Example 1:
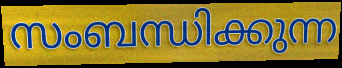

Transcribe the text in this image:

സംബന്ധിക്കുന്ന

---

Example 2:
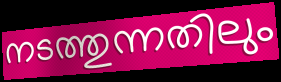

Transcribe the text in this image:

നടത്തുന്നതിലും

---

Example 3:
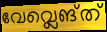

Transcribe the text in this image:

വേവ്ലെങ്ത്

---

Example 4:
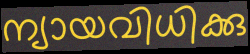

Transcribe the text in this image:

ന്യായവിധിക്കു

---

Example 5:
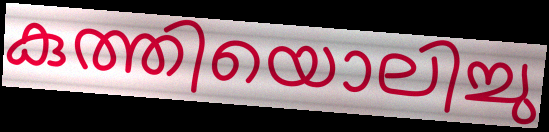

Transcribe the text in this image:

കുത്തിയൊലിച്ചു